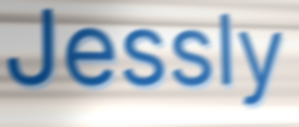
Jessly